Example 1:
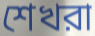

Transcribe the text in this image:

শেখরা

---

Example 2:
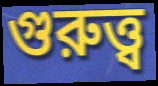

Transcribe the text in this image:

গুরুত্ত্ব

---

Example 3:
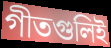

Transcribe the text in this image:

গীতগুলিই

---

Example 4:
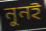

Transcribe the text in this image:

নুনই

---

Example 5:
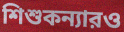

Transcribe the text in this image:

শিশুকন্যারও